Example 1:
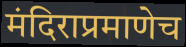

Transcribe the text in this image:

मंदिराप्रमाणेच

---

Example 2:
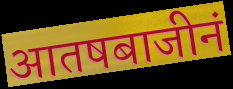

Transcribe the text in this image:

आतषबाजीनं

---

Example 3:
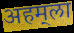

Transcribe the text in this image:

अहम्‌ला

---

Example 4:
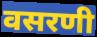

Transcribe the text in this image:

वसरणी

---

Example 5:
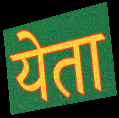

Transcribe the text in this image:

येता